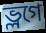
ভ্লগে